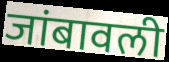
जांबावली